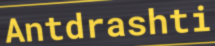
Antdrashti